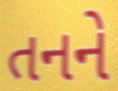
તનને